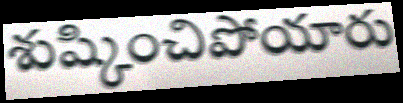
శుష్కించిపోయారు